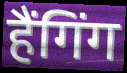
हैंगिंग